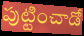
పుట్టించాడో